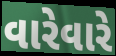
વારેવારે